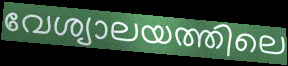
വേശ്യാലയത്തിലെ